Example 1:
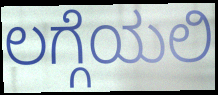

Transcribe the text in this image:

ಲಗ್ಗೆಯಲಿ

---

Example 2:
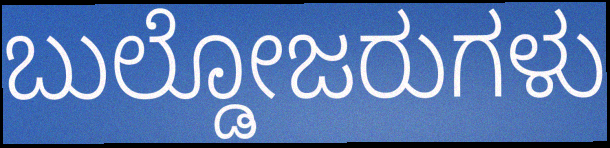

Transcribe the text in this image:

ಬುಲ್ಡೋಜರುಗಳು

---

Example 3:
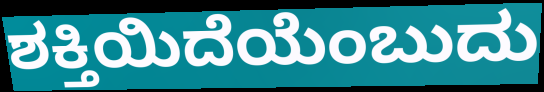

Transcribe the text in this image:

ಶಕ್ತಿಯಿದೆಯೆಂಬುದು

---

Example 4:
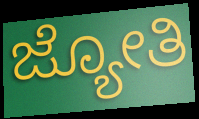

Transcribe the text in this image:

ಜ್ಯೋತಿ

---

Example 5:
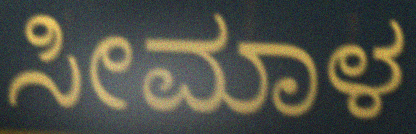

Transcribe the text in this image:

ಸೀಮಾಳ